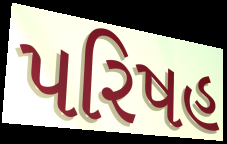
પરિષહ